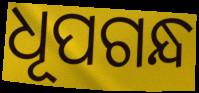
ଧୂପଗନ୍ଧ